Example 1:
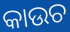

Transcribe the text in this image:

କାଉଚ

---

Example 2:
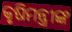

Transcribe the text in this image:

କୃଷିମନ୍ତ୍ରୀଙ୍କ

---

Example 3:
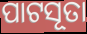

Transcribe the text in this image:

ପାଟସୂତା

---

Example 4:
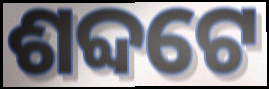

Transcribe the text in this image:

ଶବ୍ଦଟେ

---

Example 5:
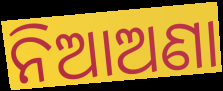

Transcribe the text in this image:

ନିଆଅଣା